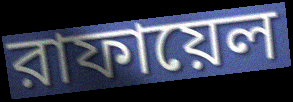
রাফায়েল